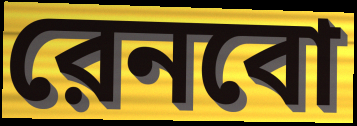
রেনবো